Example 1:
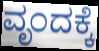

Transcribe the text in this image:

ವೃಂದಕ್ಕೆ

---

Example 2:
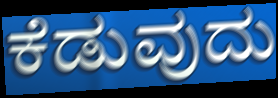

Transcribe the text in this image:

ಕೆಡುವುದು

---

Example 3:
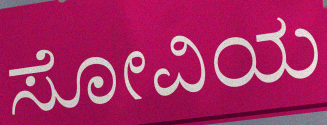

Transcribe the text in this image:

ಸೋವಿಯ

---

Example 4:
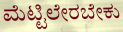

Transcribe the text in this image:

ಮೆಟ್ಟಿಲೇರಬೇಕು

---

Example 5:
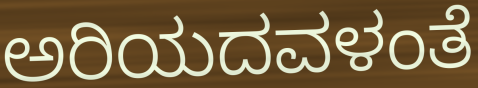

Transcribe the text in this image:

ಅರಿಯದವಳಂತೆ